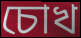
চোখ